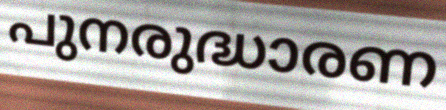
പുനരുദ്ധാരണ